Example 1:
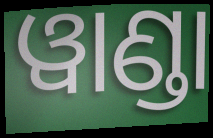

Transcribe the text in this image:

ୱାଣ୍ଡା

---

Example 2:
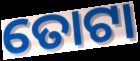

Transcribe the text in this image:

ତୋଟା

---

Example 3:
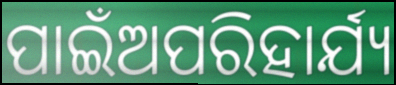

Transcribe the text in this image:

ପାଇଁଅପରିହାର୍ଯ୍ୟ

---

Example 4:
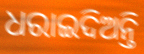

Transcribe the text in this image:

ଧରାଇଦିଅନ୍ତି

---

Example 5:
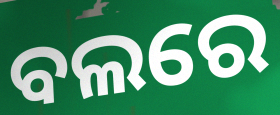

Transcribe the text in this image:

ବଲରେ